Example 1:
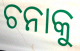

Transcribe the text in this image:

ଚନାକୁ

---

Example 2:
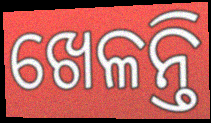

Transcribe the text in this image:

ଖେଳନ୍ତି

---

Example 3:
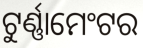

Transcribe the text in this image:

ଟୁର୍ଣ୍ଣାମେଂଟର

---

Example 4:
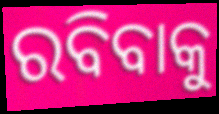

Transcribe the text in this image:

ରବିବାକୁ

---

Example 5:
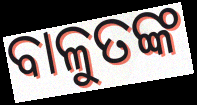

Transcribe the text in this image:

ବାଳୁତଙ୍କ